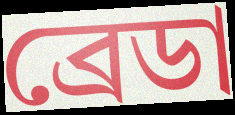
ব্রেডা